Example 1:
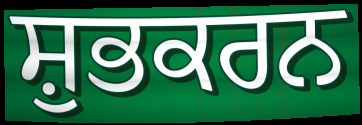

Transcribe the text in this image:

ਸ਼ੁਭਕਰਨ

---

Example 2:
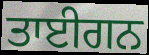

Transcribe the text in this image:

ਤਾਈਗਨ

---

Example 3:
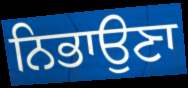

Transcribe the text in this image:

ਨਿਭਾਉਣਾ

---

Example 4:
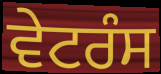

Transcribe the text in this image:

ਵੇਟਰੰਸ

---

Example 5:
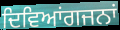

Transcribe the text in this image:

ਦਿਵਿਆਂਗਜਨਾਂ